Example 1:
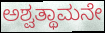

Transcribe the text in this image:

ಅಶ್ವತ್ಥಾಮನೇ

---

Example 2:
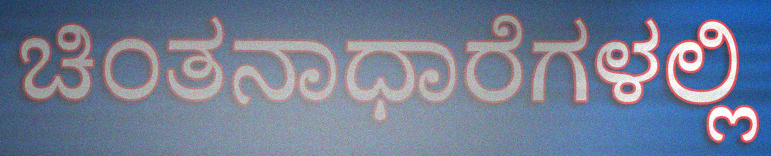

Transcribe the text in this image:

ಚಿಂತನಾಧಾರೆಗಳಲ್ಲಿ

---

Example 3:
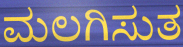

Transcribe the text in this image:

ಮಲಗಿಸುತ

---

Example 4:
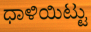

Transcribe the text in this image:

ಧಾಳಿಯಿಟ್ಟು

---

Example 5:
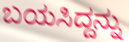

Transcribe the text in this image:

ಬಯಸಿದ್ದನ್ನು